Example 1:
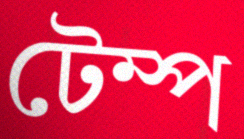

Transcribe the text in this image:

টেম্প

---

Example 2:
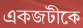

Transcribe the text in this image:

একজটীকে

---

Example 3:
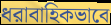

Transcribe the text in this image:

ধরাবাহিকভাবে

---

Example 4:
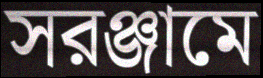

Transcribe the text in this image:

সরঞ্জামে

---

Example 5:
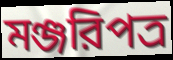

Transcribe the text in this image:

মঞ্জরিপত্র